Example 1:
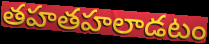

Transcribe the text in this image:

తహతహలాడటం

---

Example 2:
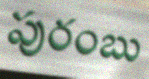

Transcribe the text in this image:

పురంబు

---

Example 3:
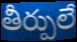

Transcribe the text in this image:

తీర్పులే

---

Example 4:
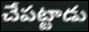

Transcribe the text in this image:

చేపట్టాడు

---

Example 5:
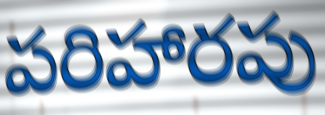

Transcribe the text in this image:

పరిహారపు